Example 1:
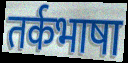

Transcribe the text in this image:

तर्कभाषा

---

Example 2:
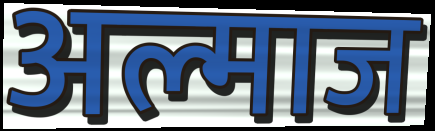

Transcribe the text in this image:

अल्माज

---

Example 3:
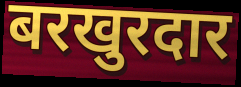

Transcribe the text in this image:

बरखुरदार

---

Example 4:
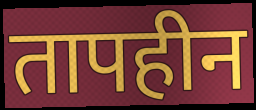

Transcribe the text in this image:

तापहीन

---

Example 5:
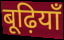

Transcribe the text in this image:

बूढ़ियाँ